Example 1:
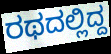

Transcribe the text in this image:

ರಥದಲ್ಲಿದ್ದ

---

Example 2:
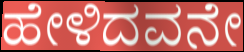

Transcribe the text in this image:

ಹೇಳಿದವನೇ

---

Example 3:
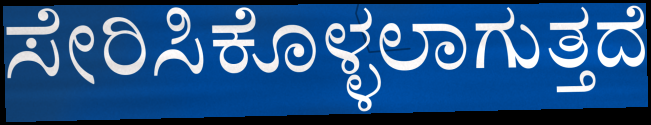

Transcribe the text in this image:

ಸೇರಿಸಿಕೊಳ್ಳಲಾಗುತ್ತದೆ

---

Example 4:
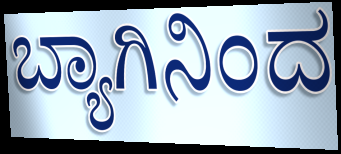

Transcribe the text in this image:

ಬ್ಯಾಗಿನಿಂದ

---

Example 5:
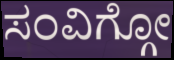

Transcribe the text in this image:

ಸಂವಿಗ್ಗೋ